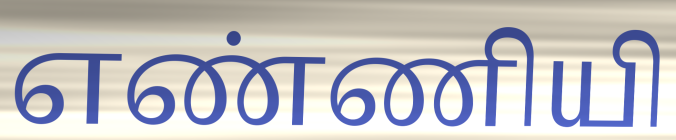
எண்ணியி